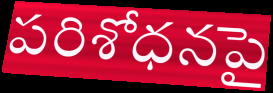
పరిశోధనపై